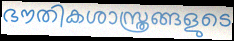
ഭൗതികശാസ്ത്രങ്ങളുടെ